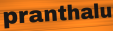
pranthalu